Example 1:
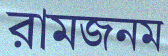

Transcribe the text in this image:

রামজনম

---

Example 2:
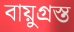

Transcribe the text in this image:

বায়ুগ্রস্ত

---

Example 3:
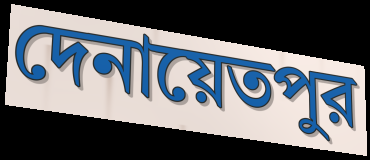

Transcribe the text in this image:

দেনায়েতপুর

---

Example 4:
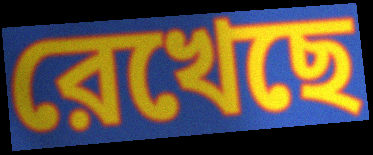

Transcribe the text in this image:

রেখেছে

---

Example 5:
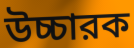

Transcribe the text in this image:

উচ্চারক